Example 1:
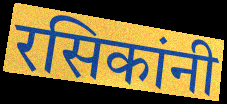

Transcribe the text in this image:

रसिकांनी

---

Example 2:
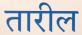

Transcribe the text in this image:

तारील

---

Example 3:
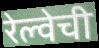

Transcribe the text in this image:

रेल्वेची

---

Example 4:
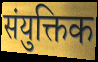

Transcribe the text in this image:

संयुक्तिक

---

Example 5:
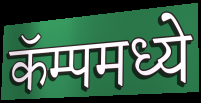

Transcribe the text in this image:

कॅम्पमध्ये